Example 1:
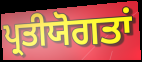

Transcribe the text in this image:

ਪ੍ਰਤੀਯੋਗਤਾਂ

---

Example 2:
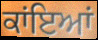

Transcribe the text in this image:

ਕਾਂਇਆਂ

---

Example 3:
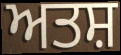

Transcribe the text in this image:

ਅਤਸ਼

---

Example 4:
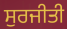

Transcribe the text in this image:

ਸੁਰਜੀਤੀ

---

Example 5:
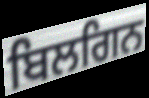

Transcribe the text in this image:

ਬਿਲਗਿਨ